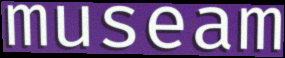
museam